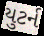
યુટર્ન